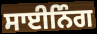
ਸਾਈਨਿੰਗ